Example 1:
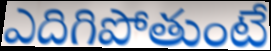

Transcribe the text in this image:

ఎదిగిపోతుంటే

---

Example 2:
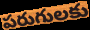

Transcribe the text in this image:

పరుగులకు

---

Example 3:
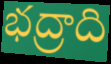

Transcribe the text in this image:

భద్రాది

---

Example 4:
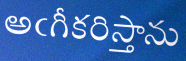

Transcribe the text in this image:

అఁగీకరిస్తాను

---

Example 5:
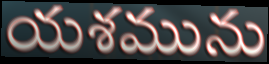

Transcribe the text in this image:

యశమును